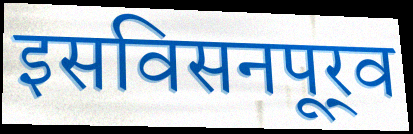
इसविसनपूर्व